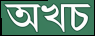
অখচ